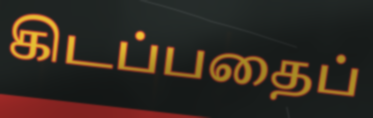
கிடப்பதைப்